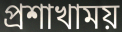
প্রশাখাময়